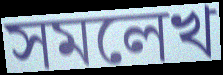
সমলেখ